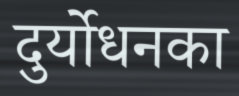
दुर्योधनका